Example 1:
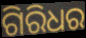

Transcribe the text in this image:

ଗିରିଧର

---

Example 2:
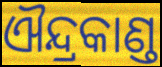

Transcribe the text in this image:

ଐନ୍ଦ୍ରକାଣ୍ଡ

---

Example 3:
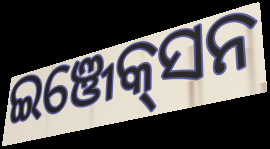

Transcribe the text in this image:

ଇଞ୍ଜେକ୍‌ସନ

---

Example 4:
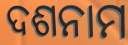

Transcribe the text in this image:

ଦଶନାମ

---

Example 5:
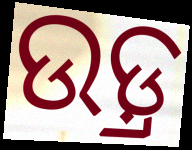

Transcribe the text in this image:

ଉଡ଼୍ର